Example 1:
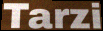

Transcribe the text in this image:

Tarzi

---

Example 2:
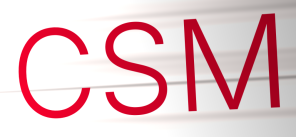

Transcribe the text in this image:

CSM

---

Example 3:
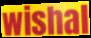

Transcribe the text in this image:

wishal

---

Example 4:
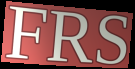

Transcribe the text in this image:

FRS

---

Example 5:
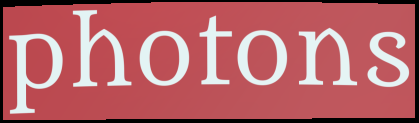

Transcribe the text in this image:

photons